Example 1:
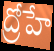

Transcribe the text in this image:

ద్రోహే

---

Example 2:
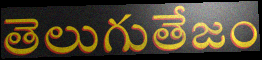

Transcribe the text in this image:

తెలుగుతేజం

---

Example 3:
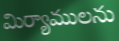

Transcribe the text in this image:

మిర్యాములను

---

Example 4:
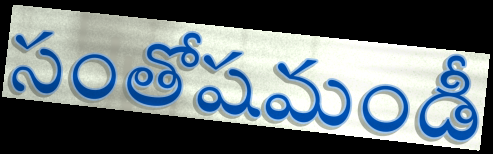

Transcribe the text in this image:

సంతోషమండీ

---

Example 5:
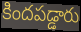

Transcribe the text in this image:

కిందపడ్డారు